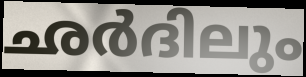
ഛർദിലും